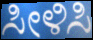
ಸೀಳಿಸಿ